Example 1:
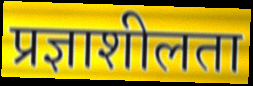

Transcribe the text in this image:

प्रज्ञाशीलता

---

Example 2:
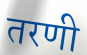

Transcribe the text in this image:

तरणी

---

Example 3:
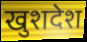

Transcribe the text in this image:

खुशदेश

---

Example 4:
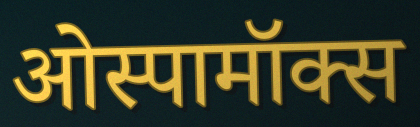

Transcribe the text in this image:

ओस्पामॉक्स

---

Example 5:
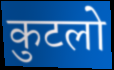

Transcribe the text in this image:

कुटलो